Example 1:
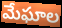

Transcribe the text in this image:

మేఘాల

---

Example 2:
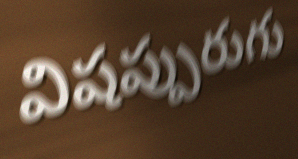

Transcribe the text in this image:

విషప్పురుగు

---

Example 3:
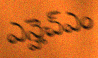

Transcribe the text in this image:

ఎన్హెచ్ఎం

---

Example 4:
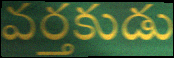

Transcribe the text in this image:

వర్తకుడు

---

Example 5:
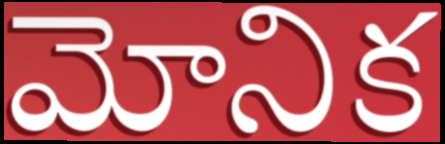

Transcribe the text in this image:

మోనిక